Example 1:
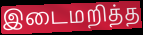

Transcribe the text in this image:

இடைமறித்த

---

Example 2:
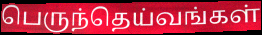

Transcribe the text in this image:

பெருந்தெய்வங்கள்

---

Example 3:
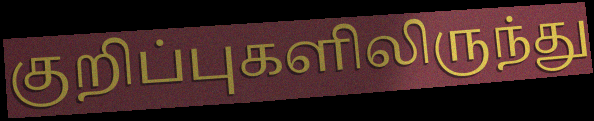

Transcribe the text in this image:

குறிப்புகளிலிருந்து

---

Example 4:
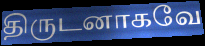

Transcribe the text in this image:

திருடனாகவே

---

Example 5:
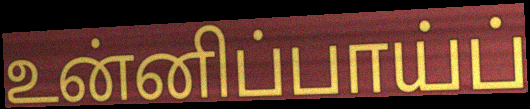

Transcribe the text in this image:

உன்னிப்பாய்ப்